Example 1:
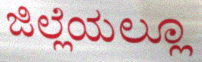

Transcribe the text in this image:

ಜಿಲ್ಲೆಯಲ್ಲೂ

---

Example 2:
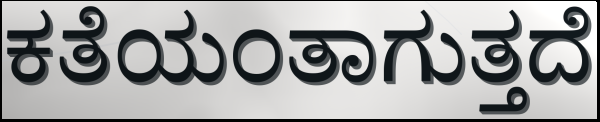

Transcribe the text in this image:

ಕತೆಯಂತಾಗುತ್ತದೆ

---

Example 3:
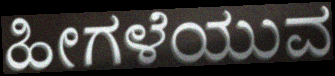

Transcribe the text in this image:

ಹೀಗಳೆಯುವ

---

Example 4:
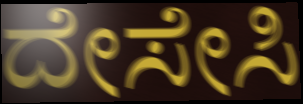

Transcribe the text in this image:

ದೇಸೇಸಿ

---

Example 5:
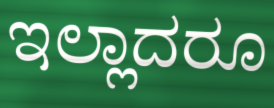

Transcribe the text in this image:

ಇಲ್ಲಾದರೂ